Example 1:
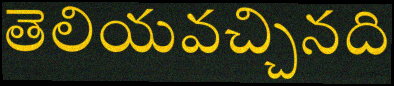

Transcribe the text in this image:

తెలియవచ్చినది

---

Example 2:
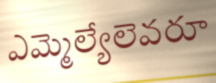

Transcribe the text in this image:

ఎమ్మెల్యేలెవరూ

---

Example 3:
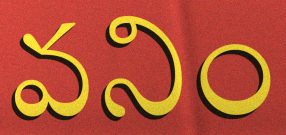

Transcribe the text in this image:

వనిం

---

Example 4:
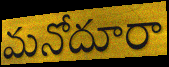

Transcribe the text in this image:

మనోదూరా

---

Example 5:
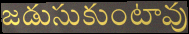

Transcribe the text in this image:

జడుసుకుంటావు